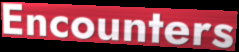
Encounters